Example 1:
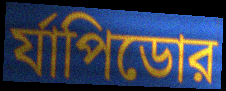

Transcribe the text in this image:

র্যাপিডোর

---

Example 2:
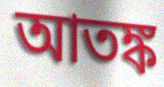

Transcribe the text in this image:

আতঙ্ক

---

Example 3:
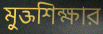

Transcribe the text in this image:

মুক্তশিক্ষার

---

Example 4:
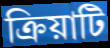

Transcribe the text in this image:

ক্রিয়াটি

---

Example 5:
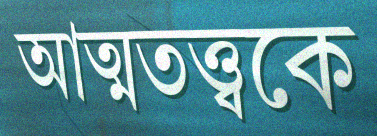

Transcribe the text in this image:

আত্মতত্ত্বকে